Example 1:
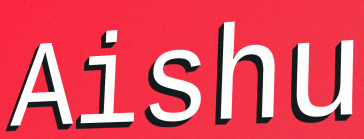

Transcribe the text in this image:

Aishu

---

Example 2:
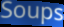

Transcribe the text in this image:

Soups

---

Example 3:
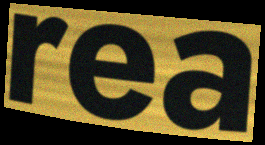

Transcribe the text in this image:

rea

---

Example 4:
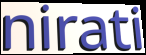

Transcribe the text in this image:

nirati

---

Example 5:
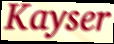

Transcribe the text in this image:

Kayser